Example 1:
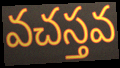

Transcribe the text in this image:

వచస్తవ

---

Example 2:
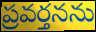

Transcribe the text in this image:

ప్రవర్తనను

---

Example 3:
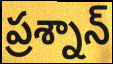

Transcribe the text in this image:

ప్రశ్నాన్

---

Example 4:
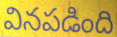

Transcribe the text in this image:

వినపడింది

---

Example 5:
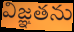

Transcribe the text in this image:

విజ్ఞతను